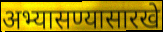
अभ्यासण्यासारखे